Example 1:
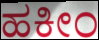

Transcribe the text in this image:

ಹಕೀಂ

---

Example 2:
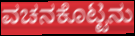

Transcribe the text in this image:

ವಚನಕೊಟ್ಟನು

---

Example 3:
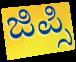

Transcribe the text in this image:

ಜಿಪ್ಸಿ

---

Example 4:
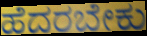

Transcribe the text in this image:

ಹೆದರಬೇಕು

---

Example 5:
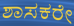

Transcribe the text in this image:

ಶಾಸಕರೇ